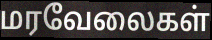
மரவேலைகள்